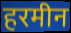
हरमीन